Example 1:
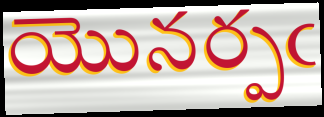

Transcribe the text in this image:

యొనర్పఁ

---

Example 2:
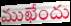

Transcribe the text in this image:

ముఖేందు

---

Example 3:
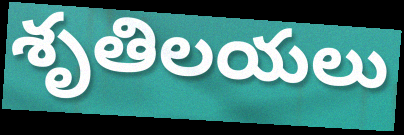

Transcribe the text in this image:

శృతిలయలు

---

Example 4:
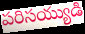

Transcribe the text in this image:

పరిసయ్యుడి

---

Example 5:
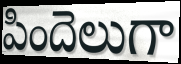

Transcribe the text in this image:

పిందెలుగా